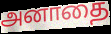
அனாதை